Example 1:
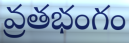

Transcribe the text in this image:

వ్రతభంగం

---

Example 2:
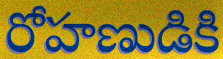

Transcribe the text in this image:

రోహణుడికి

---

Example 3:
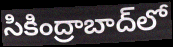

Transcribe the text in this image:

సికింద్రాబాద్‌లో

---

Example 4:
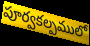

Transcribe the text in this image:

పూర్వకల్పములో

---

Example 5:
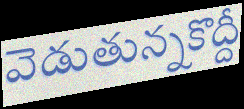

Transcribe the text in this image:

వెడుతున్నకొద్దీ